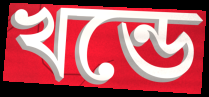
খন্ডে